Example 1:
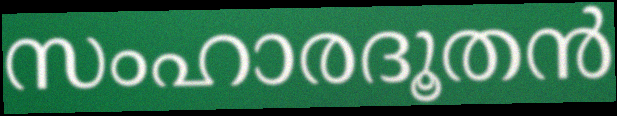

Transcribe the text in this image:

സംഹാരദൂതൻ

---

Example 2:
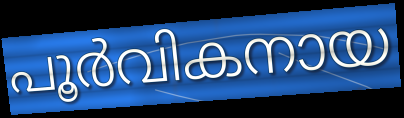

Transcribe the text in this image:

പൂർവികനായ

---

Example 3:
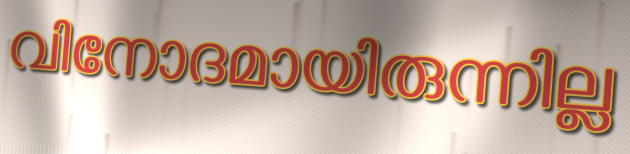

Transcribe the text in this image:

വിനോദമായിരുന്നില്ല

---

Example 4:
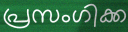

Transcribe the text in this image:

പ്രസംഗിക്ക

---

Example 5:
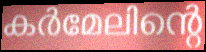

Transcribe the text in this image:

കർമേലിന്റെ